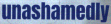
unashamedly